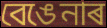
বেঙেনাৰ